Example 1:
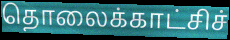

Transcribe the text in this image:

தொலைக்காட்சிச்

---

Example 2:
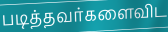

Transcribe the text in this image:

படித்தவர்களைவிட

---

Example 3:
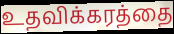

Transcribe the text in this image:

உதவிக்கரத்தை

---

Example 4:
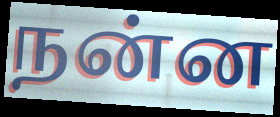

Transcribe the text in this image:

நன்ன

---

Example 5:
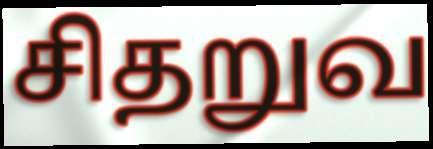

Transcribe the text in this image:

சிதறுவ